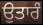
ਉਤਾਰੰ